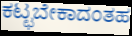
ಕಟ್ಟಬೇಕಾದಂತಹ